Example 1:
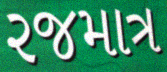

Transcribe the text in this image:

રજમાત્ર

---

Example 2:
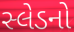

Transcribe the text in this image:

સ્લેડનો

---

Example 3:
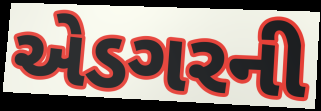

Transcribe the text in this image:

એડગરની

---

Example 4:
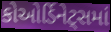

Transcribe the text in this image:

કોઓર્ડિનેટ્સમાં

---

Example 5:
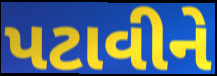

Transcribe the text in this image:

પટાવીને